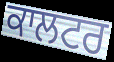
ਕਾਲਟਰ